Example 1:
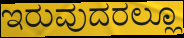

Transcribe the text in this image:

ಇರುವುದರಲ್ಲೂ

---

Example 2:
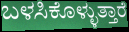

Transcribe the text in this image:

ಬಳಸಿಕೊಳ್ಳುತ್ತಾರೆ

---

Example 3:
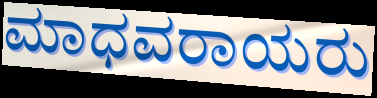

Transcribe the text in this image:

ಮಾಧವರಾಯರು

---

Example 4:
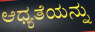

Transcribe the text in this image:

ಆಧ್ಯತೆಯನ್ನು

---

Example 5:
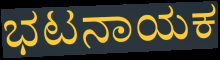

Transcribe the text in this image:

ಭಟನಾಯಕ